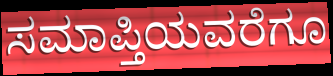
ಸಮಾಪ್ತಿಯವರೆಗೂ